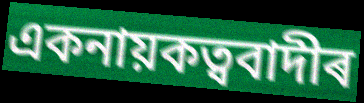
একনায়কত্ববাদীৰ